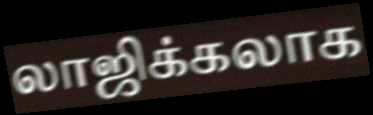
லாஜிக்கலாக